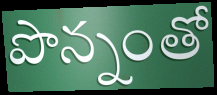
పొన్నంతో